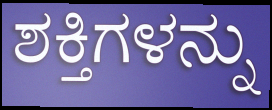
ಶಕ್ತಿಗಳನ್ನು